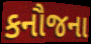
કનૌજના